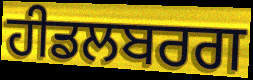
ਹੀਡਲਬਰਗ